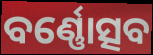
ବର୍ଣ୍ଣୋତ୍ସବ